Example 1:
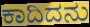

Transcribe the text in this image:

ಕಾದಿದನು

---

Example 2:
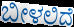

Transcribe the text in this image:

ಬೀಳಲಿದೆ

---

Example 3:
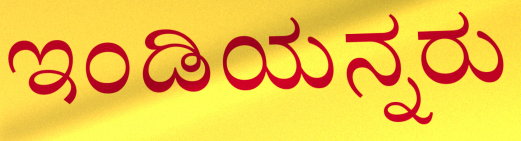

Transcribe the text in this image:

ಇಂಡಿಯನ್ನರು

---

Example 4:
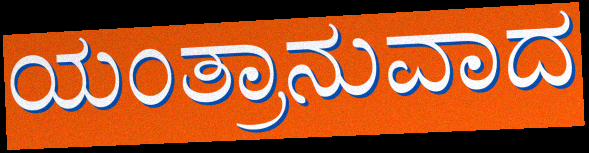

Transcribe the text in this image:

ಯಂತ್ರಾನುವಾದ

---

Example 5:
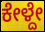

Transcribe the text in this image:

ಕೇಳ್ದೇ